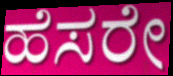
ಹೆಸರೇ